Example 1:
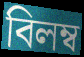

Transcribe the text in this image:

বিলম্ব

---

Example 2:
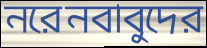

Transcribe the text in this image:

নরেনবাবুদের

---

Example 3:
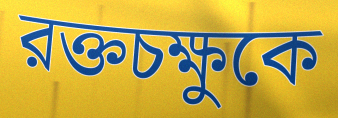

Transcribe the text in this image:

রক্তচক্ষুকে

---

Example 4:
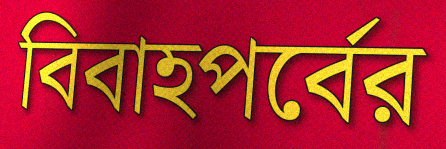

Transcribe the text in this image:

বিবাহপর্বের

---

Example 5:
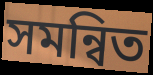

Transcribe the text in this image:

সমন্বিত